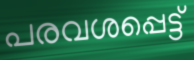
പരവശപ്പെട്ട്